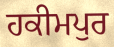
ਹਕੀਮਪੁਰ